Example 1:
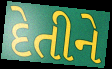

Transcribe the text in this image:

દેતીને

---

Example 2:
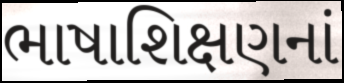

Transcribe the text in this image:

ભાષાશિક્ષણનાં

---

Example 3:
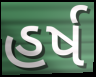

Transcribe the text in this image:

હર્ષ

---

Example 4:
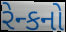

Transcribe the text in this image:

રેન્કનો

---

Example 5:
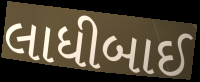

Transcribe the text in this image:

લાધીબાઈ